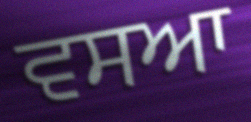
ਵਸਆ